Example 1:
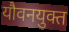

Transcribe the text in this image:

यौवनयुक्त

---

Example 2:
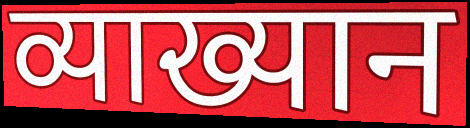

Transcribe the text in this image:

व्याख्यान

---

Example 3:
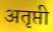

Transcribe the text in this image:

अतृप्ती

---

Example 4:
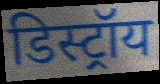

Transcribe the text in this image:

डिस्ट्रॉय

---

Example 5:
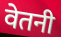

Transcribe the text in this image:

वेतनी